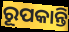
ରୂପକାନ୍ତି